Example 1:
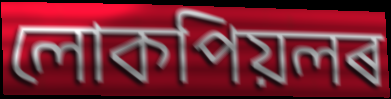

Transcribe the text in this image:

লোকপিয়লৰ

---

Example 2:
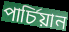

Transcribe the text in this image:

পাৰ্চিয়ান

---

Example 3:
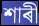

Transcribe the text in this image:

শাৰী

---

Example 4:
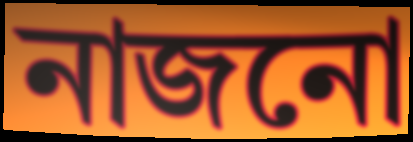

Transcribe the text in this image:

নাজনো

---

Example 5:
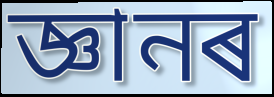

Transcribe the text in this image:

জ্ঞানৰ